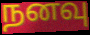
நனவு